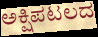
ಅಕ್ಷಿಪಟಲದ